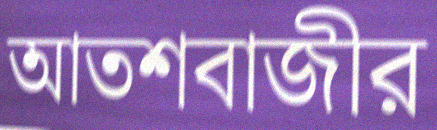
আতশবাজীর